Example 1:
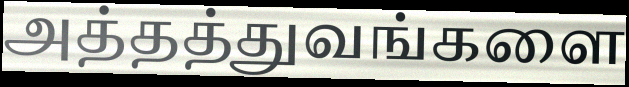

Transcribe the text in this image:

அத்தத்துவங்களை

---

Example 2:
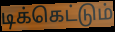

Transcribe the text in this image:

டிக்கெட்டும்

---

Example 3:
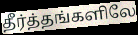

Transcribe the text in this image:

தீர்த்தங்களிலே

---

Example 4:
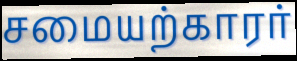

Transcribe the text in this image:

சமையற்காரர்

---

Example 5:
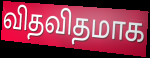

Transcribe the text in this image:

விதவிதமாக